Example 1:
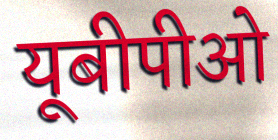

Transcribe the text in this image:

यूबीपीओ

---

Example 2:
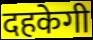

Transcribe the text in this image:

दहकेगी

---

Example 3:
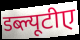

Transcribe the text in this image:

डब्ल्यूटीए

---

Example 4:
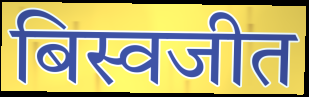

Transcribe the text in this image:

बिस्वजीत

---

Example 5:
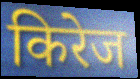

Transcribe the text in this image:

किरेज